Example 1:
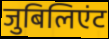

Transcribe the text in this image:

जुबिलिएंट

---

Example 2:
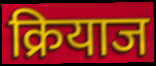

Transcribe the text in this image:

क्रियाज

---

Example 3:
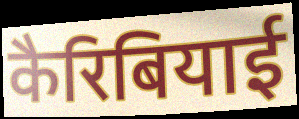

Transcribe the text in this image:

कैरिबियाई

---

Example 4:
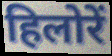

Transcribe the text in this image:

हिलोरें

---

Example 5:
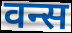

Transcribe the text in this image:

वन्स